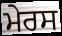
ਮੇਰਸ